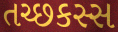
તચ્છકસ્સ